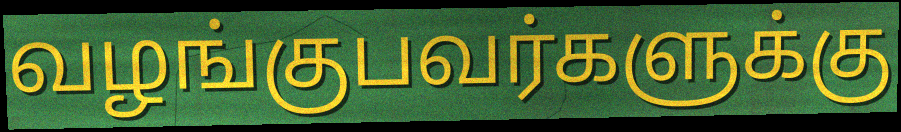
வழங்குபவர்களுக்கு